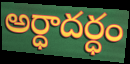
అర్ధాదర్ధం